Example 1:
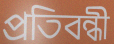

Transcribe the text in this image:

প্রতিবন্ধী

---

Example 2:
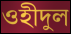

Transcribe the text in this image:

ওহীদুল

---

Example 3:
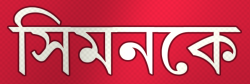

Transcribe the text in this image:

সিমনকে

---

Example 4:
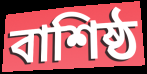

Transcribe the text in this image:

বাশিষ্ঠ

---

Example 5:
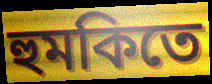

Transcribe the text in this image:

হুমকিতে